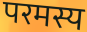
परमस्य